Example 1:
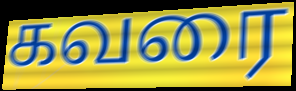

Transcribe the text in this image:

கவரை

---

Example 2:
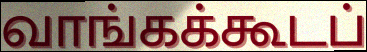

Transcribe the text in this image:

வாங்கக்கூடப்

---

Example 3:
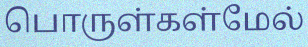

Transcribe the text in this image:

பொருள்கள்மேல்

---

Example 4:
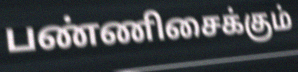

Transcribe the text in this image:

பண்ணிசைக்கும்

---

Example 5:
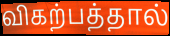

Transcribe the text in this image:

விகற்பத்தால்